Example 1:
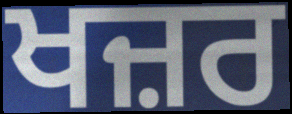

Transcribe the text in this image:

ਖਜ਼ਰ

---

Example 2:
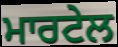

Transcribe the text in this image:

ਮਾਰਟੇਲ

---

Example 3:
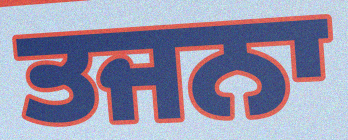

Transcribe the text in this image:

ਤਜਨਾ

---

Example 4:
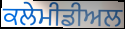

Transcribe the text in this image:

ਕਲੇਮੀਡੀਅਲ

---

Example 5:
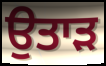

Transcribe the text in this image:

ਉਤਾਡ਼